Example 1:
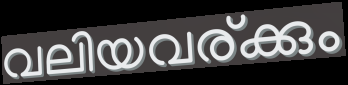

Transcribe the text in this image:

വലിയവര്ക്കും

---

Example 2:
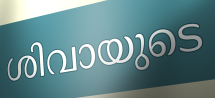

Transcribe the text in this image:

ശിവായുടെ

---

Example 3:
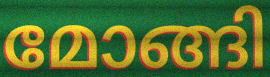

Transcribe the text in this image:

മോങ്ങി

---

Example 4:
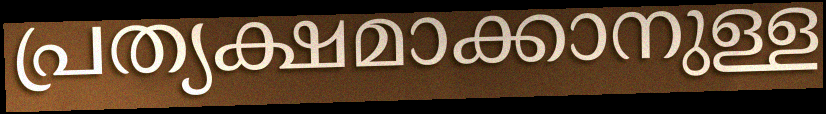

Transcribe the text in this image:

പ്രത്യക്ഷമാക്കാനുള്ള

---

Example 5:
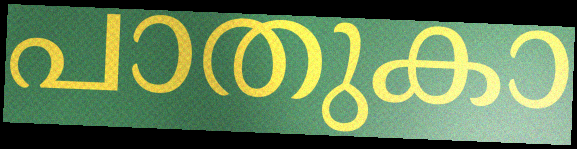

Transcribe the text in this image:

പാതുകാ